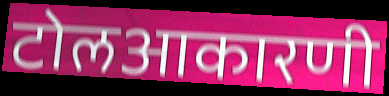
टोलआकारणी